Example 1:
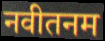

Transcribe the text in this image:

नवीतनम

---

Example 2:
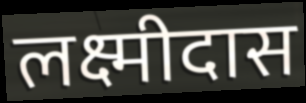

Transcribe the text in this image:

लक्ष्मीदास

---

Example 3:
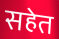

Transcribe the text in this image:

सहेत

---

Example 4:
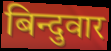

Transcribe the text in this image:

बिन्‍दुवार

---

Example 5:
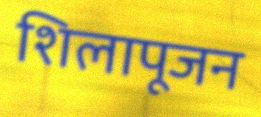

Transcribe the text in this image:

शिलापूजन